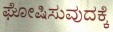
ಘೋಷಿಸುವುದಕ್ಕೆ